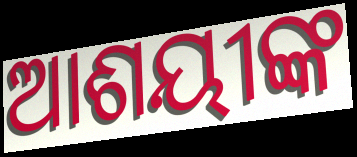
ଆଶୟୀଙ୍କ